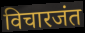
विचारजंत